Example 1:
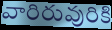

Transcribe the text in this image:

వారిరువురికి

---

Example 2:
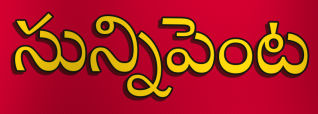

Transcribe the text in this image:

సున్నిపెంట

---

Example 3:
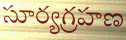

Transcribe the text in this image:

సూర్యగ్రహణ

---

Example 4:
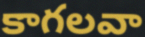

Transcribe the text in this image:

కాగలవా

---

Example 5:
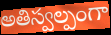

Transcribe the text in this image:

అతిస్వల్పంగా